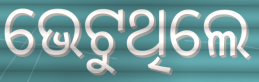
ଭେଟୁଥିଲେ